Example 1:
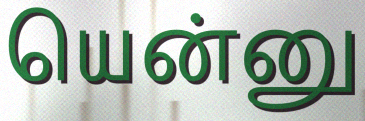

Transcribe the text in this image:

யென்னு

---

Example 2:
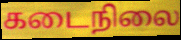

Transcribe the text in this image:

கடைநிலை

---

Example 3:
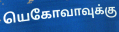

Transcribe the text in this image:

யெகோவாவுக்கு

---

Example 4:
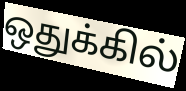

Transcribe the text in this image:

ஒதுக்கில்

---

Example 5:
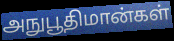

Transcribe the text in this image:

அநுபூதிமான்கள்